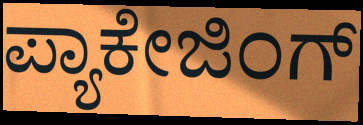
ಪ್ಯಾಕೇಜಿಂಗ್